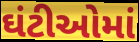
ઘંટીઓમાં